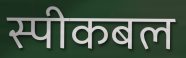
स्पीकबल